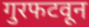
गुरफटवून